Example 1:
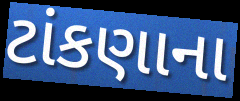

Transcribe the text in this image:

ટાંકણાના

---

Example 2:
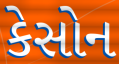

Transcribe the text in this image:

કેસોન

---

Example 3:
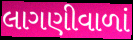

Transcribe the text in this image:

લાગણીવાળાં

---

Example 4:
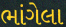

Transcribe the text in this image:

ભાંગેલા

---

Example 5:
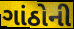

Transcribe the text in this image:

ગાંઠોની